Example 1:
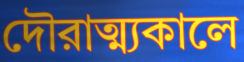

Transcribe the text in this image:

দৌরাত্ম্যকালে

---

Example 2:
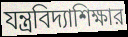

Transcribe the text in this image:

যন্ত্রবিদ্যাশিক্ষার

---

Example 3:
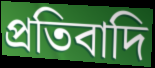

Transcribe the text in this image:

প্রতিবাদি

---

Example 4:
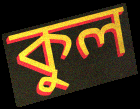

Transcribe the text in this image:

কুল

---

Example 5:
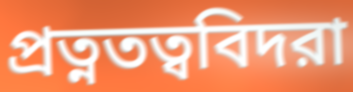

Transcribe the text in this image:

প্রত্নতত্ববিদরা